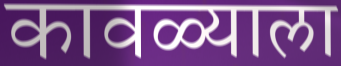
कावळ्याला